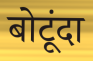
बोटूंदा